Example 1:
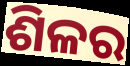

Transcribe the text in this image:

ଶିଳର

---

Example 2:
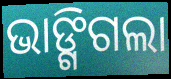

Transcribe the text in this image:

ଭାଙ୍ଗିଗଲା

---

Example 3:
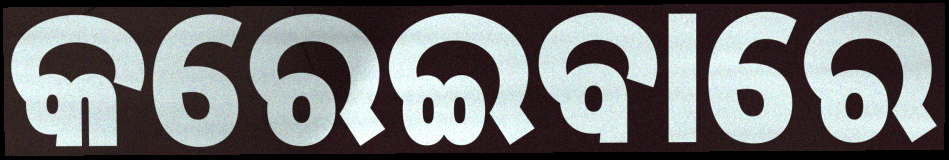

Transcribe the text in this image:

କରେଇବାରେ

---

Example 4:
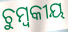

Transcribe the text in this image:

ଚୁମ୍ବକୀୟ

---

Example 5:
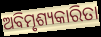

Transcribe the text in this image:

ଅବିମୃଶ୍ୟକାରିତା